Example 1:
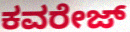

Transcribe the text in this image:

ಕವರೇಜ್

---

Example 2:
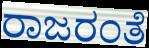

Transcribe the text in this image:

ರಾಜರಂತೆ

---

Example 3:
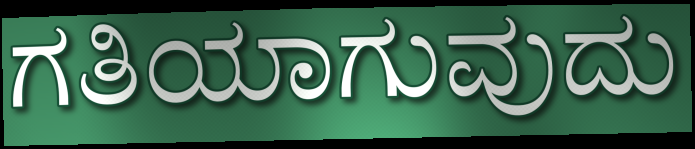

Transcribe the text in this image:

ಗತಿಯಾಗುವುದು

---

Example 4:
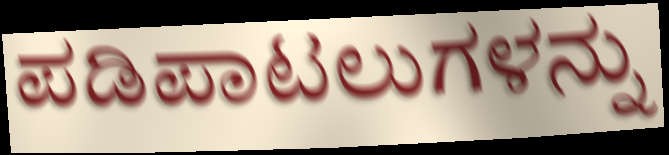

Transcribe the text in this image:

ಪಡಿಪಾಟಲುಗಳನ್ನು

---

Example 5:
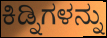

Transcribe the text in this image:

ಕಿಡ್ನಿಗಳನ್ನು